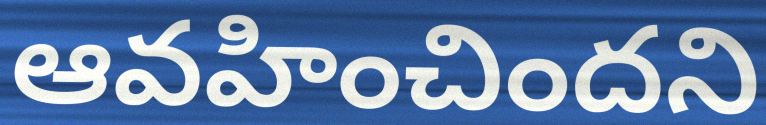
ఆవహించిందని